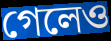
গেলেও